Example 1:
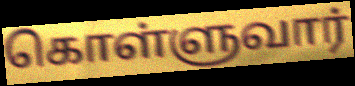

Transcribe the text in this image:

கொள்ளுவார்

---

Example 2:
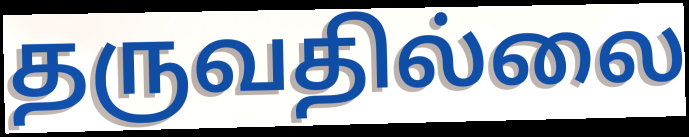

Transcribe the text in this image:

தருவதில்லை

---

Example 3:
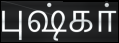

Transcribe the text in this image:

புஷ்கர்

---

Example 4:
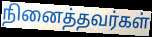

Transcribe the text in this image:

நினைத்தவர்கள்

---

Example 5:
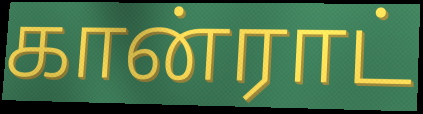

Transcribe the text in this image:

கான்ராட்